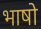
भाषो